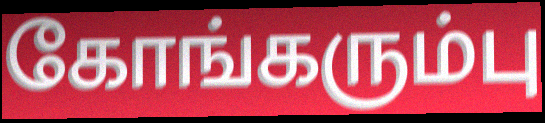
கோங்கரும்பு